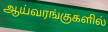
ஆய்வரங்குகளில்